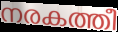
നരകത്തീ